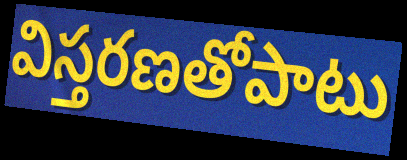
విస్తరణతోపాటు